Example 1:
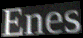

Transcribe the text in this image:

Enes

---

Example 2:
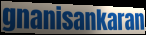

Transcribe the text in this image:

gnanisankaran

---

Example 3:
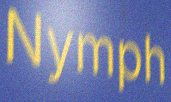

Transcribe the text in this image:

Nymph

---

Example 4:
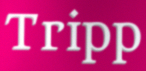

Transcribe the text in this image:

Tripp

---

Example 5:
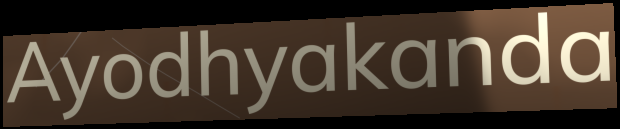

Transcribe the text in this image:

Ayodhyakanda